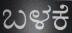
ಬಳಕೆ